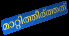
മാറ്റിത്തീര്ത്തത്